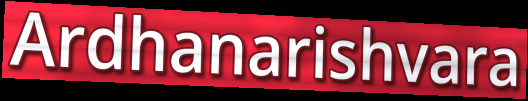
Ardhanarishvara